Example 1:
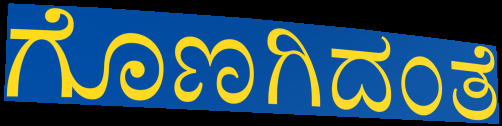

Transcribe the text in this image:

ಗೊಣಗಿದಂತೆ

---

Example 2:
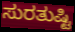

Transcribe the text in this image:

ಸುರತುಷ್ಟಿ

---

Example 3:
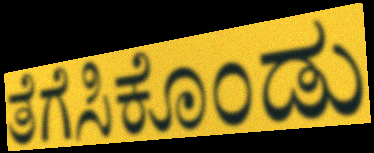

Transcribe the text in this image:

ತೆಗೆಸಿಕೊಂಡು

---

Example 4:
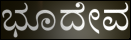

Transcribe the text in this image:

ಭೂದೇವ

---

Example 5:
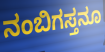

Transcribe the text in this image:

ನಂಬಿಗಸ್ತನೂ